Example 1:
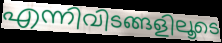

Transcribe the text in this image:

എന്നിവിടങ്ങളിലൂടെ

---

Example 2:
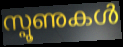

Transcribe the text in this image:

സ്പൂണുകൾ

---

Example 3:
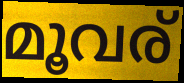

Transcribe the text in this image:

മൂവര്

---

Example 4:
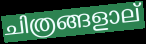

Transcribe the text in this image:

ചിത്രങ്ങളാല്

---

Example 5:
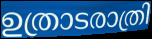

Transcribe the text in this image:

ഉത്രാടരാത്രി